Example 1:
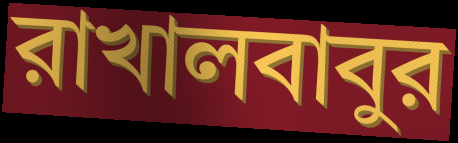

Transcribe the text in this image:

রাখালবাবুর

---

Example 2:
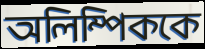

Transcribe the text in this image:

অলিম্পিককে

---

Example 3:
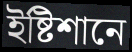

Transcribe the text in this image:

ইষ্টিশানে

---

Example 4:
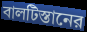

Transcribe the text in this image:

বালটিস্তানের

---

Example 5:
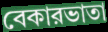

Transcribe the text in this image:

বেকারভাতা